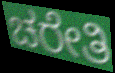
ಚರೇತಿ